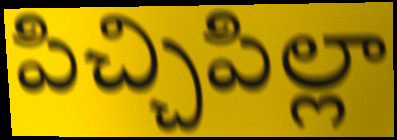
పిచ్చిపిల్లా